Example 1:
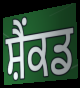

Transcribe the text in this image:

ਸ਼ੈਂਕਡ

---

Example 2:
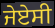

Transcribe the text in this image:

ਜੇਏਸੀ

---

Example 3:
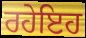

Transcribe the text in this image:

ਰਹੇਇਹ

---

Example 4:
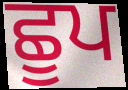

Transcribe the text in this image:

ਛੂਪ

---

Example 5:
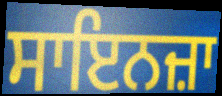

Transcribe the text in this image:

ਸਾਇਨਜ਼ਾ